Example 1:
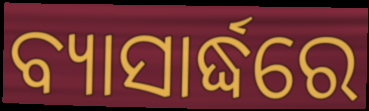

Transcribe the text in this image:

ବ୍ୟାସାର୍ଦ୍ଧରେ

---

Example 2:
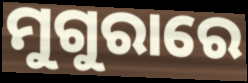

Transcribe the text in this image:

ମୁଗୁରାରେ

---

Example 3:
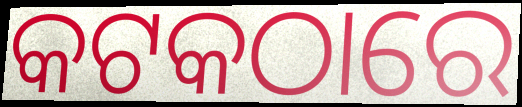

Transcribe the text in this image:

କଟକଠାରେ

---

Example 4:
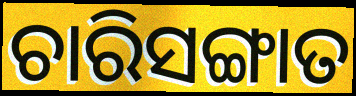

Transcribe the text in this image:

ଚାରିସଙ୍ଗାତ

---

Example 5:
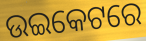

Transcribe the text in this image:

ଉଇକେଟରେ